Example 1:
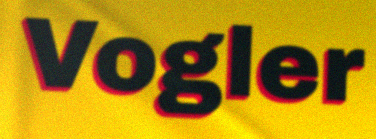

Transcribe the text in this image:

Vogler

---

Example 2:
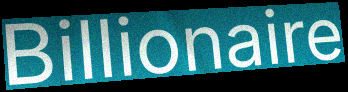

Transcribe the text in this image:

Billionaire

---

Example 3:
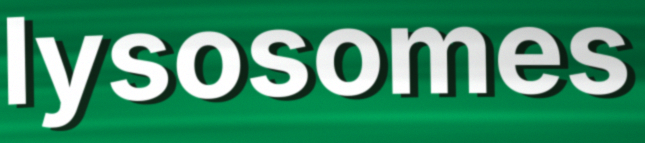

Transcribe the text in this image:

lysosomes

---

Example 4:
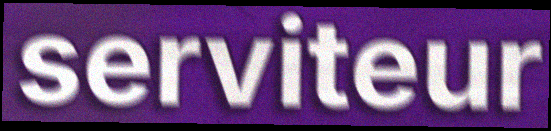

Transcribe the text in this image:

serviteur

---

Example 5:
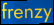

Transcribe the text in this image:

frenzy